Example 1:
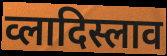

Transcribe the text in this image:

व्लादिस्लाव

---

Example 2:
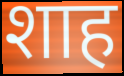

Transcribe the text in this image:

शाह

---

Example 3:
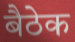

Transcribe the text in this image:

बैठेक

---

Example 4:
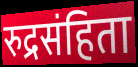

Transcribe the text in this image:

रुद्रसंहिता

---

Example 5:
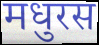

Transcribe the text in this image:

मधुरस